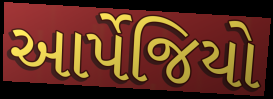
આર્પેજિયો